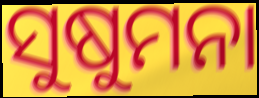
ସୁଷୁମନା